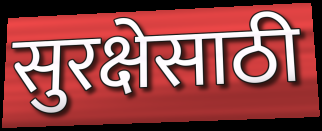
सुरक्षेसाठी